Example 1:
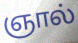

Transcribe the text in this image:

ஞால்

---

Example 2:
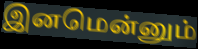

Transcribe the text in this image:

இனமென்னும்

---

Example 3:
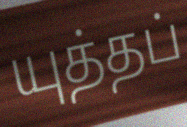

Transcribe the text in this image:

யுத்தப்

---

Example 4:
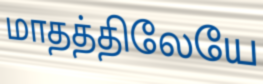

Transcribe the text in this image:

மாதத்திலேயே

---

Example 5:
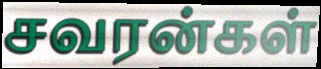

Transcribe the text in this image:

சவரன்கள்